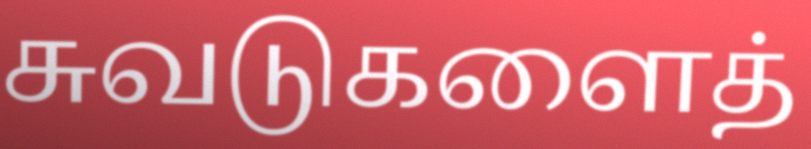
சுவடுகளைத்